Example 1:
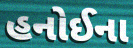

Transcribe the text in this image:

હનોઈના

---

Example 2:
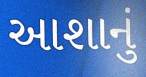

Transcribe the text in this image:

આશાનું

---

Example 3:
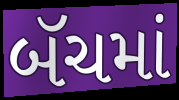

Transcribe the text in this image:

બૅચમાં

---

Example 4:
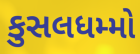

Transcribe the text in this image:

કુસલધમ્મો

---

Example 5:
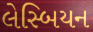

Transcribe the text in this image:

લેસ્બિયન